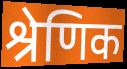
श्रेणिक